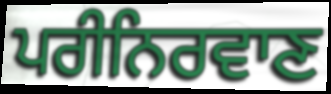
ਪਰੀਨਿਰਵਾਣ